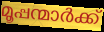
മൂപ്പന്മാർക്ക്